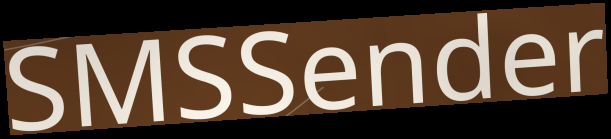
SMSSender